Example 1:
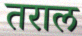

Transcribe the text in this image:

तराल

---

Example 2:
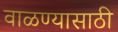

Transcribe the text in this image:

वाळण्यासाठी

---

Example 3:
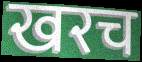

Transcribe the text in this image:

खरच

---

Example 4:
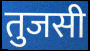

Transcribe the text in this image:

तुजसी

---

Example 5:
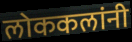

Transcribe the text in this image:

लोककलांनी